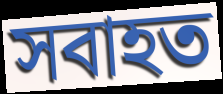
সবাহত